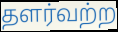
தளர்வற்ற